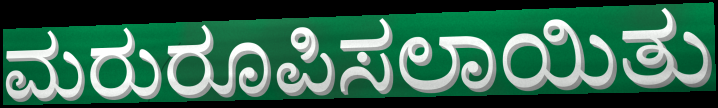
ಮರುರೂಪಿಸಲಾಯಿತು